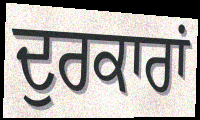
ਦੁਰਕਾਰਾਂ